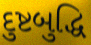
દુષ્ટબુદ્ધિ